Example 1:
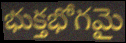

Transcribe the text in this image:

భుక్తభోగమై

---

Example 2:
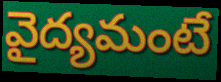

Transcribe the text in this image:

వైద్యమంటే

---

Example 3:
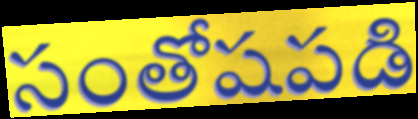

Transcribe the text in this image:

సంతోషపడి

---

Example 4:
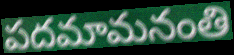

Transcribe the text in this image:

పదమామనంతి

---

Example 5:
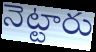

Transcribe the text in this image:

నెట్టారు